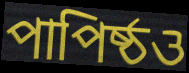
পাপিষ্ঠও